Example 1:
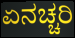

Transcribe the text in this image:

ಏನಚ್ಚರಿ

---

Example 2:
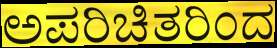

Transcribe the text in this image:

ಅಪರಿಚಿತರಿಂದ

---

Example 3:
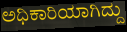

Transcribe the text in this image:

ಅಧಿಕಾರಿಯಾಗಿದ್ದು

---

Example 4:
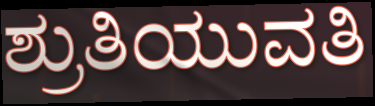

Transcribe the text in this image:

ಶ್ರುತಿಯುವತಿ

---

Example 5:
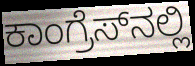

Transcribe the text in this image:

ಕಾಂಗ್ರೆಸ್‍ನಲ್ಲಿ